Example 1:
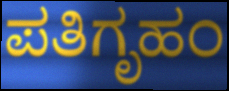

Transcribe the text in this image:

ಪತಿಗೃಹಂ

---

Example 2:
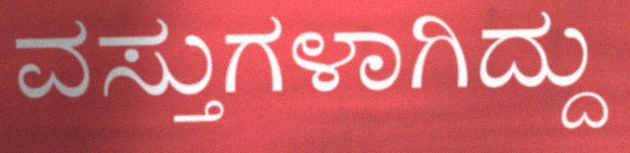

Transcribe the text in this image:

ವಸ್ತುಗಳಾಗಿದ್ದು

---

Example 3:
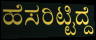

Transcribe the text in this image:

ಹೆಸರಿಟ್ಟಿದ್ದೆ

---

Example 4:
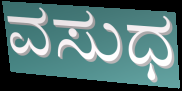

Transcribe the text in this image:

ವಸುಧ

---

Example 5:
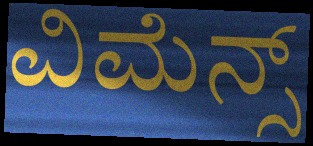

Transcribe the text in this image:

ವಿಮೆನ್ಸ್